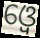
ଓ୍ବେ